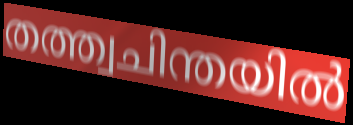
തത്ത്വചിന്തയിൽ